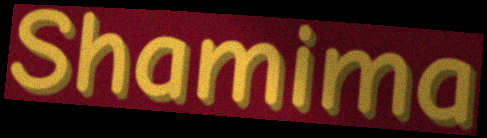
Shamima